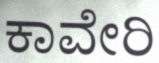
ಕಾವೇರಿ